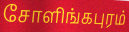
சோளிங்கபுரம்